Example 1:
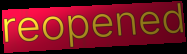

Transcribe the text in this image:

reopened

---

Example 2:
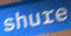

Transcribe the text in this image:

shure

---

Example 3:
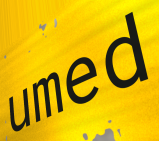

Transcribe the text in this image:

umed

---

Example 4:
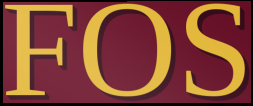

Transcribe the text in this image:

FOS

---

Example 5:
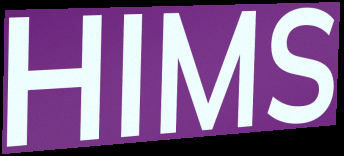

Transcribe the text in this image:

HIMS